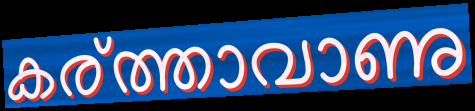
കര്ത്താവാണു